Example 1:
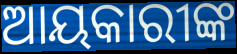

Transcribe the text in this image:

ଆୟକାରୀଙ୍କ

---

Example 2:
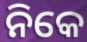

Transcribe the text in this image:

ନିକେ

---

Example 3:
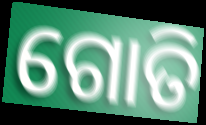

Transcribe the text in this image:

ଗୋତି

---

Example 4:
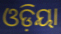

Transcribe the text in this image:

ଓଡ଼ିୟା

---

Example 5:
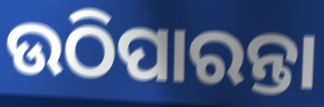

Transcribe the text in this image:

ଉଠିପାରନ୍ତା